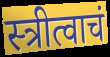
स्त्रीत्वाचं